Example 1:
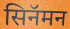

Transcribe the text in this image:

सिनॅमन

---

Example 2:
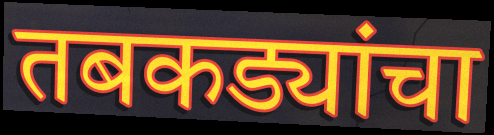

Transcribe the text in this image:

तबकड्यांचा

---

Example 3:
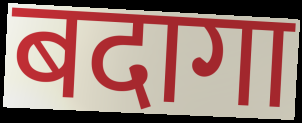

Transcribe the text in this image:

बदागा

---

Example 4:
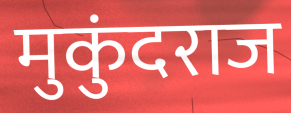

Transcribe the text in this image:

मुकुंदराज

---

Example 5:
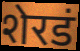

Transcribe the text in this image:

शेरडं